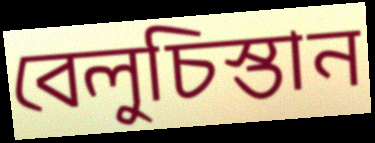
বেলুচিস্তান